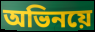
অভিনয়ে